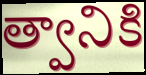
త్వానికి